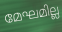
മേഘമില്ല